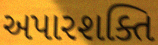
અપારશક્તિ